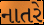
નાતરે